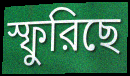
স্ফুরিছে